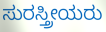
ಸುರಸ್ತ್ರೀಯರು